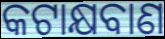
କଟାକ୍ଷବାଣ